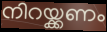
നിറയ്ക്കണം